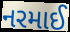
નરમાઈ